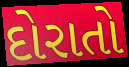
દોરાતો